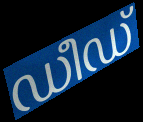
ഡീഡ്